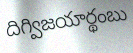
దిగ్విజయార్థంబు